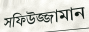
সফিউজ্জামান